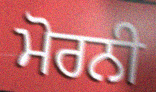
ਮੋਰਨੀ